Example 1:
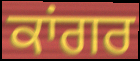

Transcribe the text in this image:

ਕਾਂਗਰ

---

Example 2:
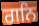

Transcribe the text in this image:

ਗਨਿ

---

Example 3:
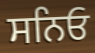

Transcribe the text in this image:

ਸਨਿਓ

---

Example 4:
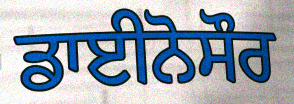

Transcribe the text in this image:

ਡਾਈਨੋਸੌਰ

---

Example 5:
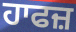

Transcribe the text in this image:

ਹਾਫਜ਼